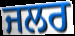
ਜਲਰ